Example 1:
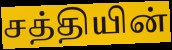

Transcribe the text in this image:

சத்தியின்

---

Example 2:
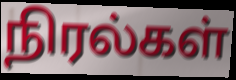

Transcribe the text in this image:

நிரல்கள்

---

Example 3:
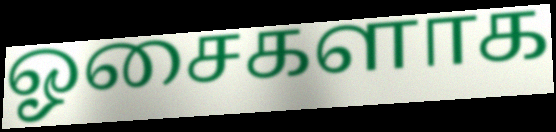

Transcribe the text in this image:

ஓசைகளாக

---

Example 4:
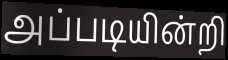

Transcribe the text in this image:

அப்படியின்றி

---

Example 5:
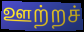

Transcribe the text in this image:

ஊற்றச்